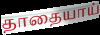
தாதையாய்